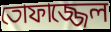
তোফাজ্জেল